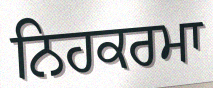
ਨਿਹਕਰਮਾ